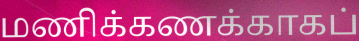
மணிக்கணக்காகப்